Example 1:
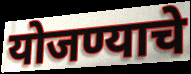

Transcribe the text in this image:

योजण्याचे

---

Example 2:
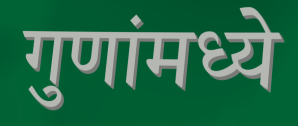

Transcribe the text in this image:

गुणांमध्ये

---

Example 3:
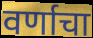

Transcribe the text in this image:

वर्णाचा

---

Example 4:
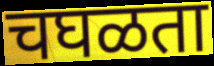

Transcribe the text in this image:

चघळता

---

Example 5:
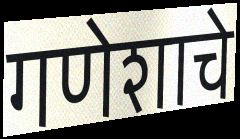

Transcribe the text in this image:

गणेशाचे